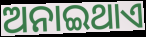
ଅନାଇଥାଏ